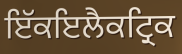
ਇੱਕਇਲੈਕਟ੍ਰਿਕ